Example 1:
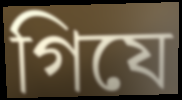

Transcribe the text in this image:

গিযে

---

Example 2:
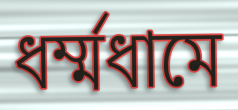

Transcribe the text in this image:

ধর্ম্মধামে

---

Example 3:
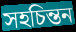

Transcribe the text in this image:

সহচিন্তন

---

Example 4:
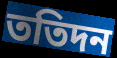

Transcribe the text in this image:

ততিদন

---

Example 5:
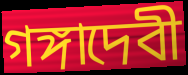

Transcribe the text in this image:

গঙ্গাদেবী